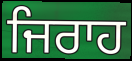
ਜਿਰਾਹ